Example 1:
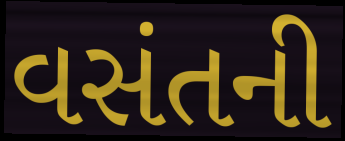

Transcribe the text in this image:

વસંતની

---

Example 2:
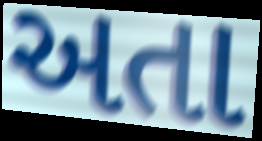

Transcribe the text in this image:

અતા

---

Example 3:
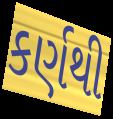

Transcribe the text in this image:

કર્ણથી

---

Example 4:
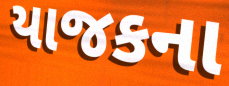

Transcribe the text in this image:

યાજકના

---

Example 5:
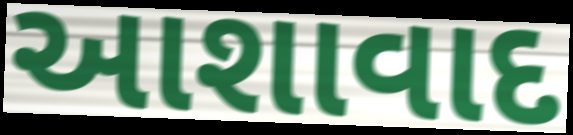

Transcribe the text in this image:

આશાવાદ